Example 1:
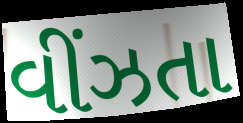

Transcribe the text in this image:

વીંઝતા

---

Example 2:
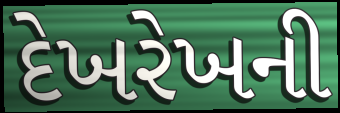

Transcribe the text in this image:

દેખરેખની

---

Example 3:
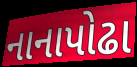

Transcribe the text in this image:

નાનાપોઢા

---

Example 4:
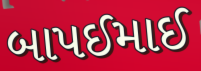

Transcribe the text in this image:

બાપઈમાઈ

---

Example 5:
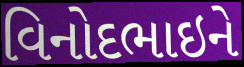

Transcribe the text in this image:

વિનોદભાઇને